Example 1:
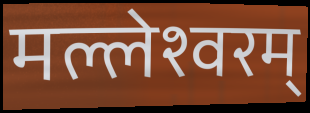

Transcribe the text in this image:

मल्लेश्वरम्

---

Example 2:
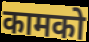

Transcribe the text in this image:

कामको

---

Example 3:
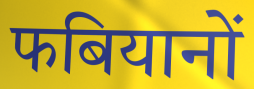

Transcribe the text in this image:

फबियानों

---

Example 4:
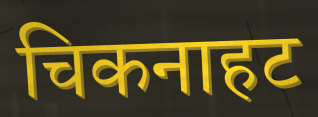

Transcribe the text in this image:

चिकनाहट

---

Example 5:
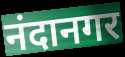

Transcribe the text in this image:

नंदानगर